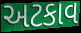
અટકાવ